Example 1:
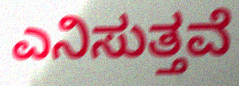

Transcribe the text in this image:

ಎನಿಸುತ್ತವೆ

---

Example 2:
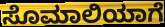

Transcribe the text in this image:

ಸೊಮಾಲಿಯಾಗೆ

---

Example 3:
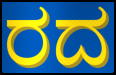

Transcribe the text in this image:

ರದ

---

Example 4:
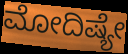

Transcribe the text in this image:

ಮೋದಿಷ್ಯೇ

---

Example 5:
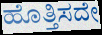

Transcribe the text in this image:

ಹೊತ್ತಿಸದೇ